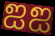
ஐஐ